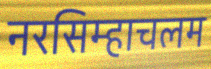
नरसिम्हाचलम